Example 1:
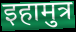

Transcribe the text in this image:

इहामुत्र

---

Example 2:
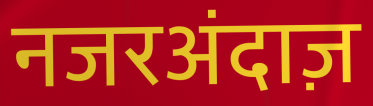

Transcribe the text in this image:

नजरअंदाज़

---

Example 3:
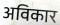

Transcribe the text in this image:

अविकार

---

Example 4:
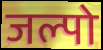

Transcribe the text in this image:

जल्पो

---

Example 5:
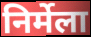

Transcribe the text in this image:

निर्मेला